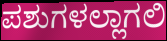
ಪಶುಗಳಲ್ಲಾಗಲಿ